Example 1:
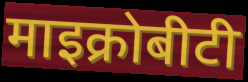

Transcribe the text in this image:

माइक्रोबीटी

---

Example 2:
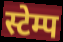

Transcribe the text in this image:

स्टेम्प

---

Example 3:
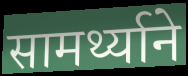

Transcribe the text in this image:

सामर्थ्याने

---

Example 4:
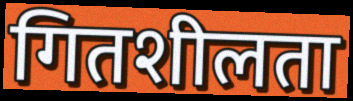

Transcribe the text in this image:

गितशीलता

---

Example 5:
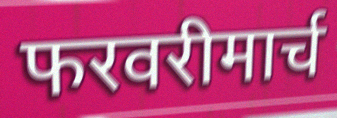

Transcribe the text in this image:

फरवरीमार्च